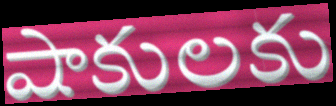
షాకులకు